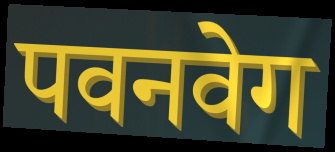
पवनवेग